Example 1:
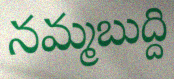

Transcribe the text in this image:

నమ్మబుద్ది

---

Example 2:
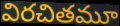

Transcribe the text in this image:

విరచితమూ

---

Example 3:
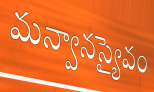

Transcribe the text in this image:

మన్వానస్యైవం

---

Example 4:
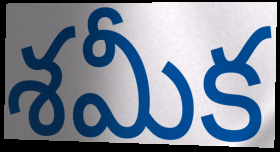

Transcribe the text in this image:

శమీక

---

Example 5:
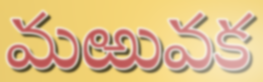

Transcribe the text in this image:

మఱువక